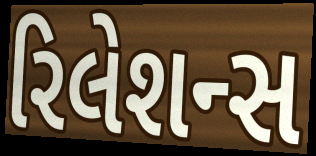
રિલેશન્સ